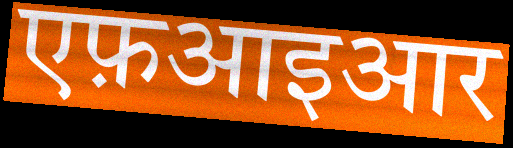
एफ़आइआर